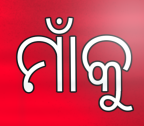
ମାଁକୁ